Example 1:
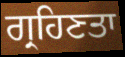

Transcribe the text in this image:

ਗ੍ਰਹਿਣਤਾ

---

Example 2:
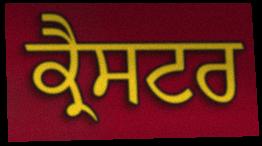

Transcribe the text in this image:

ਕ੍ਰੈਸਟਰ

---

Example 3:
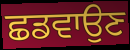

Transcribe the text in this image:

ਛਡਵਾਉਣ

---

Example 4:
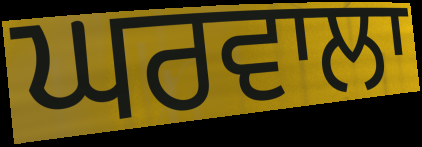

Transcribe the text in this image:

ਘਰਵਾਲਾ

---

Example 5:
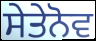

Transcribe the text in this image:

ਸੇਤੇਨੋਵ